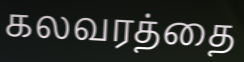
கலவரத்தை